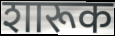
शारूक